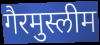
गैरमुस्लीम